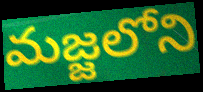
మజ్జలోని